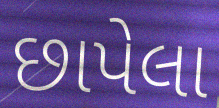
છાપેલા